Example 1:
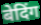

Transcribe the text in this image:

बेदिंग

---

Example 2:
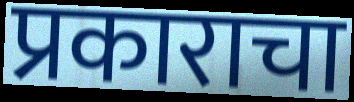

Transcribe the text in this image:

प्रकाराचा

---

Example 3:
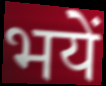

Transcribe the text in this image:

भयें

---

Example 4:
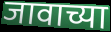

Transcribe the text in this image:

जावाच्या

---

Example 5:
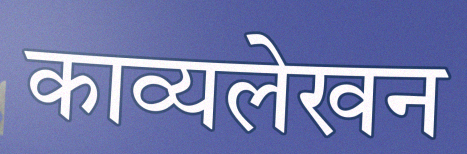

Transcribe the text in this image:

काव्यलेखन